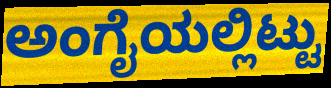
ಅಂಗೈಯಲ್ಲಿಟ್ಟು